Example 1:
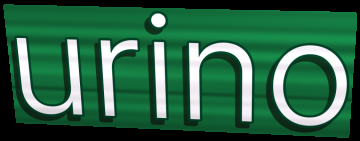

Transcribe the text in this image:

urino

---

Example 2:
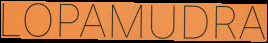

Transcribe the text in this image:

LOPAMUDRA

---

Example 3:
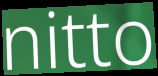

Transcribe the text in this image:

nitto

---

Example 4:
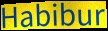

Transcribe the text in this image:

Habibur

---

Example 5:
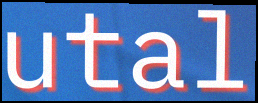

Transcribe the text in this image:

utal